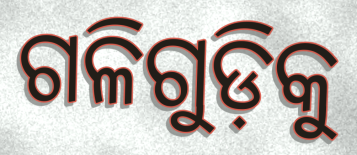
ଗଳିଗୁଡ଼ିକୁ